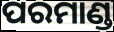
ପରମାଣ୍ଡ